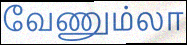
வேணும்லா